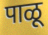
पाळू